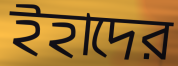
ইহাদের